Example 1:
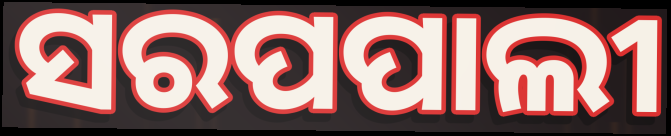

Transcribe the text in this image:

ସରପପାଲୀ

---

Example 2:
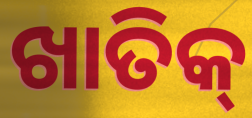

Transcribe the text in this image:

ଖାତିକ୍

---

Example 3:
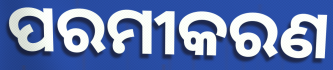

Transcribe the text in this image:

ପରମୀକରଣ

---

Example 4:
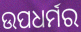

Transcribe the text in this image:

ଉପଧର୍ମର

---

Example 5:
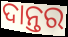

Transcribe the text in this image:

ଦାନ୍ତର